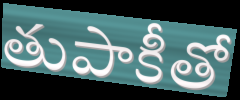
తుపాకీతో